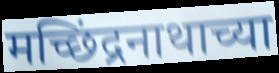
मच्छिंद्रनाथाच्या